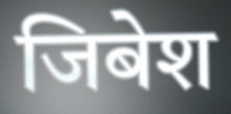
जिबेश